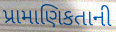
પ્રામાણિકતાની